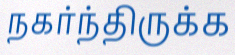
நகர்ந்திருக்க